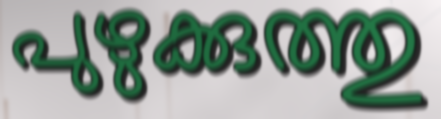
പുഴുക്കുത്തു